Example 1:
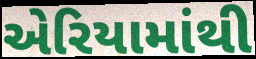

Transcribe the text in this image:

એરિયામાંથી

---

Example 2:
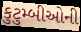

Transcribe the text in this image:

કુટુમ્બીઓની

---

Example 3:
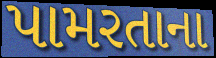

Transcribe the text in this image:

પામરતાના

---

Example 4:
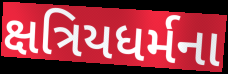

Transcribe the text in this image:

ક્ષત્રિયધર્મના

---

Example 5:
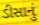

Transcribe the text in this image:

ડીસાનું